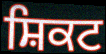
ਸ਼ਿਕਟ